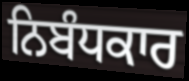
ਨਿਬੰਧਕਾਰ